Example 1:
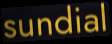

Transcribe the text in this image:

sundial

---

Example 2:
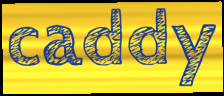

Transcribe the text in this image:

caddy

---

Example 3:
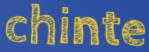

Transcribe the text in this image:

chinte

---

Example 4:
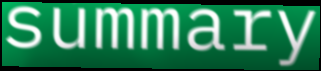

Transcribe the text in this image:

summary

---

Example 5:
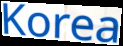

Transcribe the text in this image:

Korea